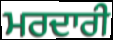
ਮਰਦਾਰੀ